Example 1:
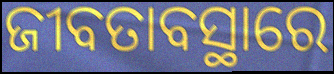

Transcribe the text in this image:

ଜୀବତାବସ୍ଥାରେ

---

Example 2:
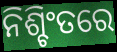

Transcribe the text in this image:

ନିଶ୍ଚିଂତରେ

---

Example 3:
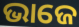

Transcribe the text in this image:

ଭାଜେ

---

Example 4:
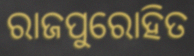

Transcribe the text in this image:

ରାଜପୁରୋହିତ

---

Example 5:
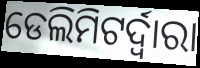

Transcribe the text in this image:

ଡେଲିମିଟର୍ଦ୍ୱାରା